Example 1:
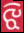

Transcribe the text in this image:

ଝି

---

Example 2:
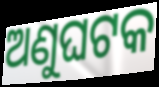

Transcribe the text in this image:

ଅଣୁଘଟକ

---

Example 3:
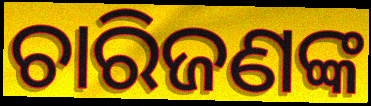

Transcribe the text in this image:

ଚାରିଜଣଙ୍କ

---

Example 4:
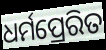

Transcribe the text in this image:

ଧର୍ମପ୍ରେରିତ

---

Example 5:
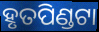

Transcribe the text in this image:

ହୃତପିଣ୍ଡଟା